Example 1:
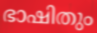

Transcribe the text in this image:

ഭാഷിതും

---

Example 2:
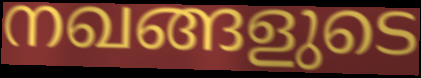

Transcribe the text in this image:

നഖങ്ങളുടെ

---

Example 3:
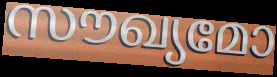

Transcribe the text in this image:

സൗഖ്യമോ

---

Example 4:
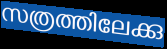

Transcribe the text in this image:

സത്രത്തിലേക്കു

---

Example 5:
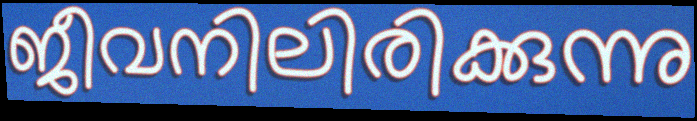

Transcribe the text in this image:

ജീവനിലിരിക്കുന്നു